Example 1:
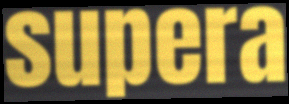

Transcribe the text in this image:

supera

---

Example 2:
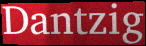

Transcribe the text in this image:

Dantzig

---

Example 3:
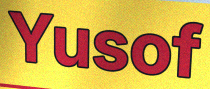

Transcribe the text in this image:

Yusof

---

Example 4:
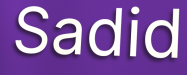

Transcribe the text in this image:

Sadid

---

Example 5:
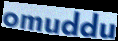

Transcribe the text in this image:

omuddu